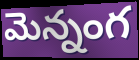
మెన్నంగ